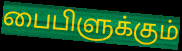
பைபிளுக்கும்